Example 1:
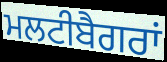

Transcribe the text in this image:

ਮਲਟੀਬੈਗਰਾਂ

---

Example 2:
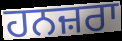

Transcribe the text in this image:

ਹਨਜ਼ਰਾ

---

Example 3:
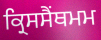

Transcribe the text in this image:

ਕ੍ਰਿਸਸੈਂਥਮਮ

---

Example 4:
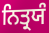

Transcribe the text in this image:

ਨਿਤ੍ਰਯੰ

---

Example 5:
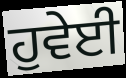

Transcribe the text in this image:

ਹੁਵੇਈ